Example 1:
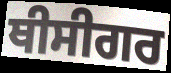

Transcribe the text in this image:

ਥੀਸੀਗਰ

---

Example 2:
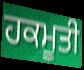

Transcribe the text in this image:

ਹਕਮੂਤੀ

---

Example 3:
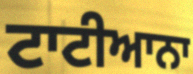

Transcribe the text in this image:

ਟਾਟੀਆਨਾ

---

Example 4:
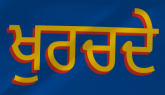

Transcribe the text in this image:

ਖੁਰਚਦੇ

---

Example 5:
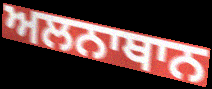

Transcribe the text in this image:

ਅਲਨਾਥਾਨ